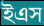
ইএস